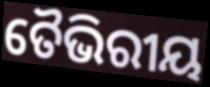
ତୈଭିରୀୟ